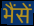
भैंसें